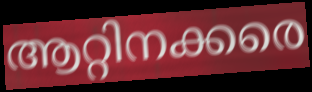
ആറ്റിനക്കരെ